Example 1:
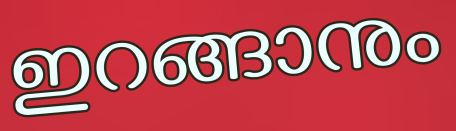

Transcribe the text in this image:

ഇറങ്ങാനും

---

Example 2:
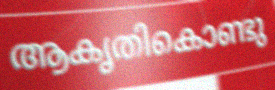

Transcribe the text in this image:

ആകൃതികൊണ്ടു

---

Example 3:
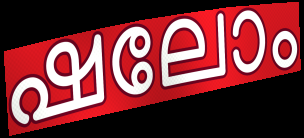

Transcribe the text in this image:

ഷലോം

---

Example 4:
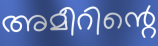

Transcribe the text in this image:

അമീറിന്റെ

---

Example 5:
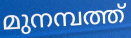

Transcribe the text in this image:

മുനമ്പത്ത്